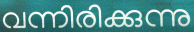
വന്നിരിക്കുന്നു